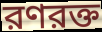
রণরক্ত